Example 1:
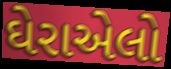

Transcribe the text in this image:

ઘેરાએલો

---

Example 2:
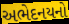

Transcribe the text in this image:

અભેદનયનો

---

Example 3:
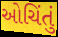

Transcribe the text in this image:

ઓચિંતું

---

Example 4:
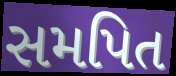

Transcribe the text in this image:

સમપિત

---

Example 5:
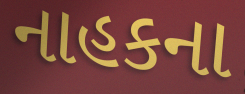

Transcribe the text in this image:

નાહકના